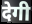
देगी